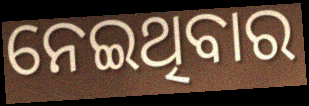
ନେଇଥିବାର